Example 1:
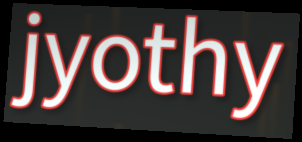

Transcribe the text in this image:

jyothy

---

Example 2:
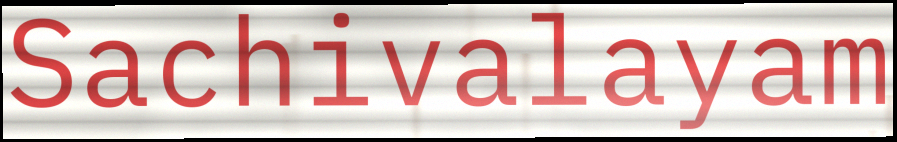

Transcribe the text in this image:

Sachivalayam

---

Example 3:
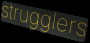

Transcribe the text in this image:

strugglers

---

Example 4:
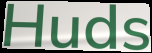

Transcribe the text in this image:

Huds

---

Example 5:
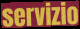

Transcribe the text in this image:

servizio